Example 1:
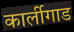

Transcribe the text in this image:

कार्लीगाड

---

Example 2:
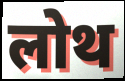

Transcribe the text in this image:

लोथ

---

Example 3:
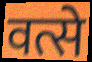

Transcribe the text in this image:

वत्से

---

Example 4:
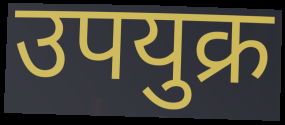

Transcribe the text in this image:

उपयुक्र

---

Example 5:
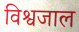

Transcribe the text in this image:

विश्वजाल